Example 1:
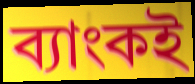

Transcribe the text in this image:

ব্যাংকই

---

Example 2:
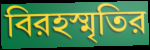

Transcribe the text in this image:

বিরহস্মৃতির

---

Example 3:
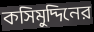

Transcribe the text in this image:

কসিমুদ্দিনের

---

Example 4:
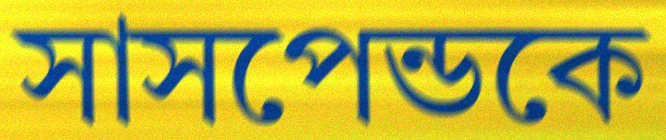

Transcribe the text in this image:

সাসপেন্ডকে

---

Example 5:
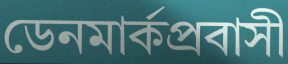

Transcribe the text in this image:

ডেনমার্কপ্রবাসী